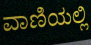
ವಾಣಿಯಲ್ಲಿ